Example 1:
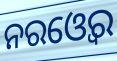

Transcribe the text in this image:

ନରଓ୍ବେର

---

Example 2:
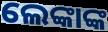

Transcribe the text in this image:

ଲେଙ୍କାଙ୍କ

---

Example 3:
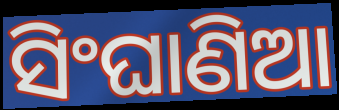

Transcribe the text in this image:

ସିଂଘାଣିଆ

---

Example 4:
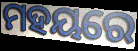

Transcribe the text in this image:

ମହୟରେ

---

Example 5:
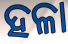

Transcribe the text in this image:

ହଳା